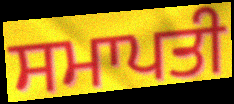
ਸਮਾਪਤੀ